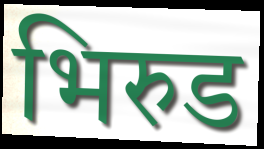
भिरुड